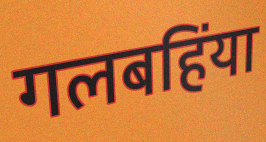
गलबहिंया